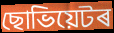
ছোভিয়েটৰ